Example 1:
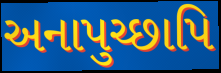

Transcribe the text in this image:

અનાપુચ્છાપિ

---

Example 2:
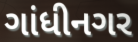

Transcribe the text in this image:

ગાંધીનગર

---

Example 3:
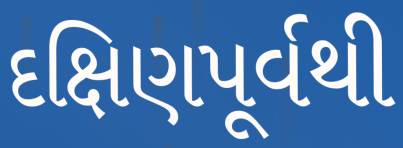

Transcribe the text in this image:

દક્ષિણપૂર્વથી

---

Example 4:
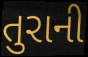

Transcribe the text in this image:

તુરાની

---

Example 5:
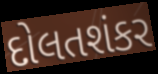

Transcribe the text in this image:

દોલતશંકર